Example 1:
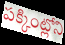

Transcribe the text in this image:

పక్కింట్లోని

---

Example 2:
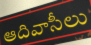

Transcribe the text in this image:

ఆదివాసీలు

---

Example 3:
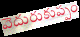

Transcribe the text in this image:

వెదురుకుప్పం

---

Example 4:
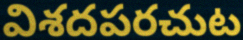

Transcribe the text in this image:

విశదపరచుట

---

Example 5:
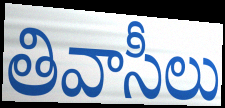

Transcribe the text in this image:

తివాసీలు